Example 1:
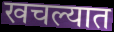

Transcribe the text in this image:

खचल्यात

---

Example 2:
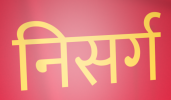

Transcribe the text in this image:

निसर्ग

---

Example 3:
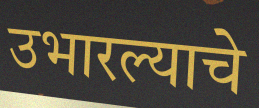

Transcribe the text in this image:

उभारल्याचे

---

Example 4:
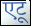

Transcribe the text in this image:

एटू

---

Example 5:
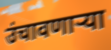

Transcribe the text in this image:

उंचावणाऱ्या